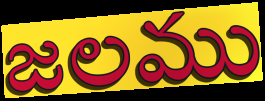
జలము